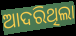
ଆଦରିଥିଲା